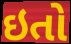
ઇતો